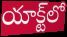
యాక్ట్‌లో